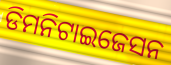
ଡିମନିଟାଇଜେସନ